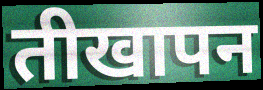
तीखापन